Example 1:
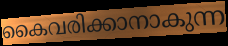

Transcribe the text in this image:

കൈവരിക്കാനാകുന്ന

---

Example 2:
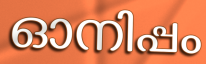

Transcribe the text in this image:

ഓനിപ്പം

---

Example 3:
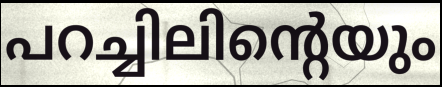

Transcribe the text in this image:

പറച്ചിലിന്റെയും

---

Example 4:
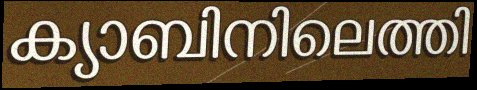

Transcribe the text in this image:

ക്യാബിനിലെത്തി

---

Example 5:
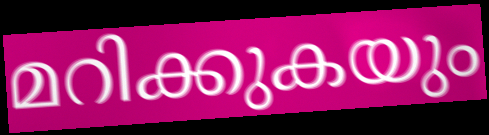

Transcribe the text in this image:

മറിക്കുകയും